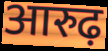
आरुढ़